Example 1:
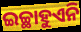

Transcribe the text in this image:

ଇଚ୍ଛାହୁଏନି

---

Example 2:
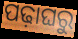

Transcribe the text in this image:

ପଢ଼ାଘରୁ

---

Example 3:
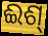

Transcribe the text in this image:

ଈଶ୍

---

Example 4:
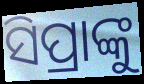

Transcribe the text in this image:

ସିପ୍ରାଙ୍କୁ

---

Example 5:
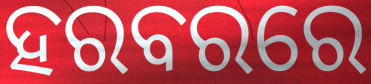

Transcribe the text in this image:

ହରବରରେ